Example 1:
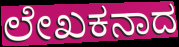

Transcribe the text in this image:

ಲೇಖಕನಾದ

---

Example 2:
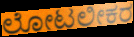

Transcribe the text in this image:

ಲೋಟಲೀಕರ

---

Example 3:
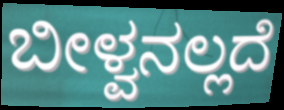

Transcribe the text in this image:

ಬೀಳ್ವನಲ್ಲದೆ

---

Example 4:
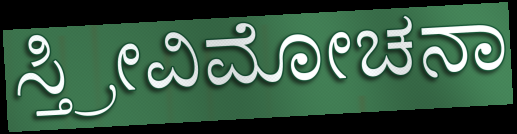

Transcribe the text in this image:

ಸ್ತ್ರೀವಿಮೋಚನಾ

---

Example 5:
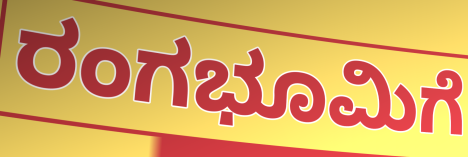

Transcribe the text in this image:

ರಂಗಭೂಮಿಗೆ